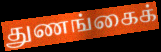
துணங்கைக்